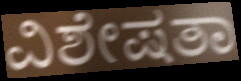
ವಿಶೇಷತಾ